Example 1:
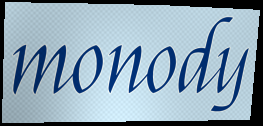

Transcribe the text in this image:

monody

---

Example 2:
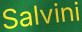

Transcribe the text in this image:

Salvini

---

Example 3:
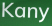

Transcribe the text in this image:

Kany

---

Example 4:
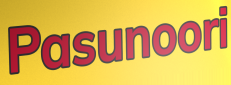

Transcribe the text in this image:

Pasunoori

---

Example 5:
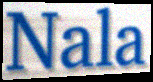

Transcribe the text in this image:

Nala